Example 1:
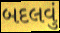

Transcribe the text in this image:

બદલવું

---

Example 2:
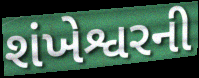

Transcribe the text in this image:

શંખેશ્વરની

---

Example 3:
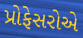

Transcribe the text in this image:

પ્રોફેસરોએ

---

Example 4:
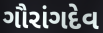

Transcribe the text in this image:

ગૌરાંગદેવ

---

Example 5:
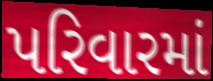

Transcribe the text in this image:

પરિવારમાં